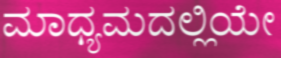
ಮಾಧ್ಯಮದಲ್ಲಿಯೇ